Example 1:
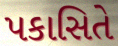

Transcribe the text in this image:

પકાસિતે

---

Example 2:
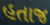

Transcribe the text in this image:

હતાજ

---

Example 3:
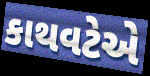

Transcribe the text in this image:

કાથવટેએ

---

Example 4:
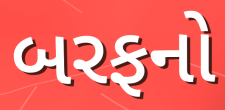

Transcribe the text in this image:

બરફનો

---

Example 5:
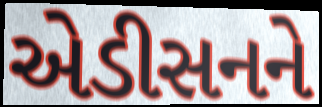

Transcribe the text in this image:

એડીસનને